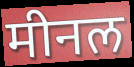
मीनल